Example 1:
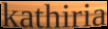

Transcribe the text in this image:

kathiria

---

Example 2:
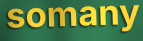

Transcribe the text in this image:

somany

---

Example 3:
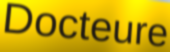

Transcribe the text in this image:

Docteure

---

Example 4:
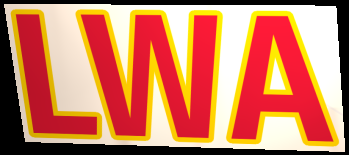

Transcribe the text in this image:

LWA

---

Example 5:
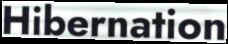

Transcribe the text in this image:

Hibernation